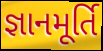
જ્ઞાનમૂર્તિ